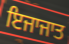
ਇਜਾਜਾਤ